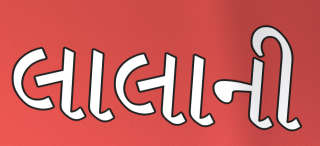
લાલાની